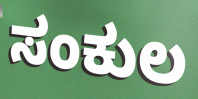
ಸಂಕುಲ